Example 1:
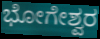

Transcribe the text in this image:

ಭೋಗೇಶ್ವರ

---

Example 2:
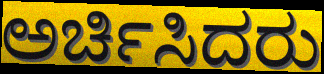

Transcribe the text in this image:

ಅರ್ಚಿಸಿದರು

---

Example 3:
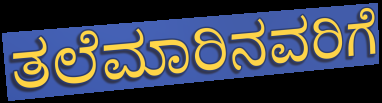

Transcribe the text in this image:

ತಲೆಮಾರಿನವರಿಗೆ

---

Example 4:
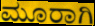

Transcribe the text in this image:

ಮೂರಾಗಿ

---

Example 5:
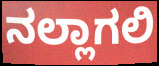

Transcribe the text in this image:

ನಲ್ಲಾಗಲಿ